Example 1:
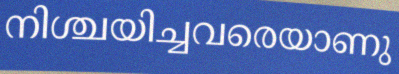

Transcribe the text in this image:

നിശ്ചയിച്ചവരെയാണു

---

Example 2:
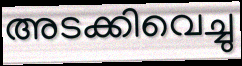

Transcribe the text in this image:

അടക്കിവെച്ചു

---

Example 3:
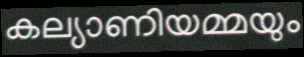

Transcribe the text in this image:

കല്യാണിയമ്മയും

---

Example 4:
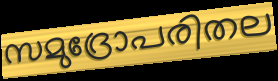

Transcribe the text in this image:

സമുദ്രോപരിതല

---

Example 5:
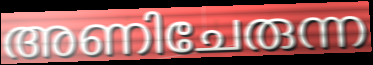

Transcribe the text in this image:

അണിചേരുന്ന